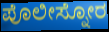
ಪೊಲೀಸ್ನೋರ